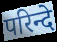
परिन्दे